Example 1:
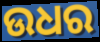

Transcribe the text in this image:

ଉଧର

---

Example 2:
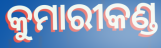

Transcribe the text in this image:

କୁମାରୀକଣ୍ଡ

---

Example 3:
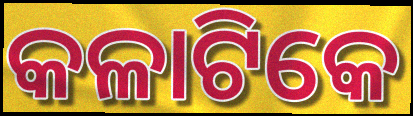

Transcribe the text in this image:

କଳାଟିକେ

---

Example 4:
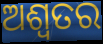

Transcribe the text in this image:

ଅଶ୍ୱତର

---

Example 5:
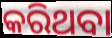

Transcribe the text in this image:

କରିଥବା